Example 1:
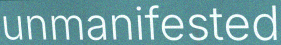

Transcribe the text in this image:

unmanifested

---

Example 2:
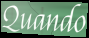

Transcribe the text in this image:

Quando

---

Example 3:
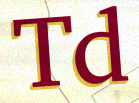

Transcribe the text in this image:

Td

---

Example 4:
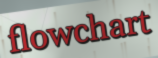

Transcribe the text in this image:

flowchart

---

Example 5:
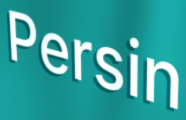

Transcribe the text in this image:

Persin